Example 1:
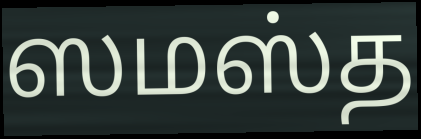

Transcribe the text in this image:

ஸமஸ்த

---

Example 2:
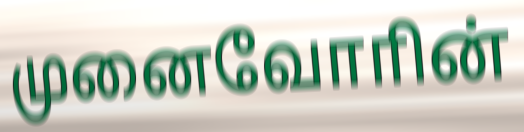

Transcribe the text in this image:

முனைவோரின்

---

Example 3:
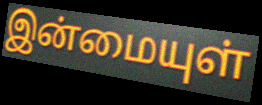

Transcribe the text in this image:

இன்மையுள்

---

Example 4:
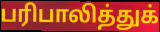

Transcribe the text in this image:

பரிபாலித்துக்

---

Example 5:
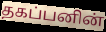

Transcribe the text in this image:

தகப்பனின்